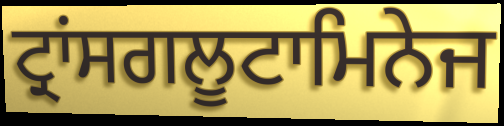
ਟ੍ਰਾਂਸਗਲੂਟਾਮਿਨੇਜ